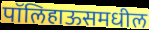
पॉलिहाऊसमधील